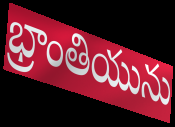
భ్రాంతియును